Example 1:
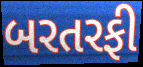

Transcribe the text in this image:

બરતરફી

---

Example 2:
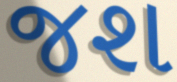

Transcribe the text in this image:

જશ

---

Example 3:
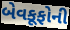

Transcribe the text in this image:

બેવકૂફોની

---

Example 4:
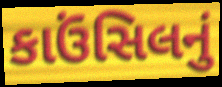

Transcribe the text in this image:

કાઉંસિલનું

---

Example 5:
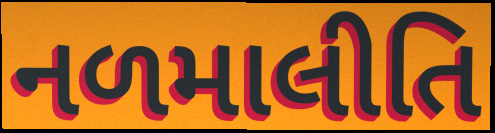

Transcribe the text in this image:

નળમાલીતિ